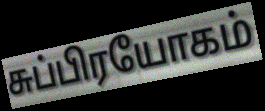
சுப்பிரயோகம்